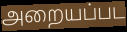
அறையப்பட